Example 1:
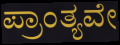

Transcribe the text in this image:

ಪ್ರಾಂತ್ಯವೇ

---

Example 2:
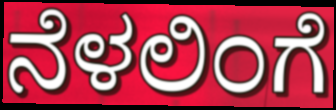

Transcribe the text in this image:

ನೆಳಲಿಂಗೆ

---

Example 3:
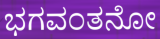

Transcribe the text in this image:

ಭಗವಂತನೋ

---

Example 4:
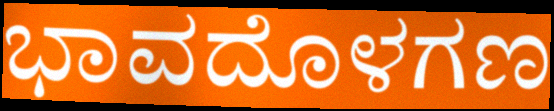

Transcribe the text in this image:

ಭಾವದೊಳಗಣ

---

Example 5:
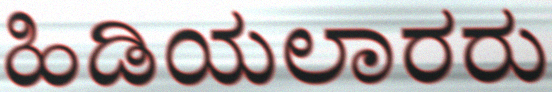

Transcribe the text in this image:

ಹಿಡಿಯಲಾರರು